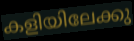
കളിയിലേക്കു